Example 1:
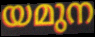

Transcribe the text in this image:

യമുന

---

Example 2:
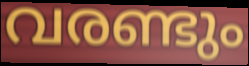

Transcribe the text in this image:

വരണ്ടും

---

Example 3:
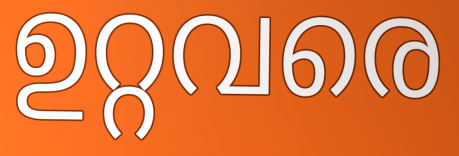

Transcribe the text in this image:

ഉറ്റവരെ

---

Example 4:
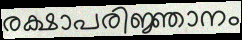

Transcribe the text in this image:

രക്ഷാപരിജ്ഞാനം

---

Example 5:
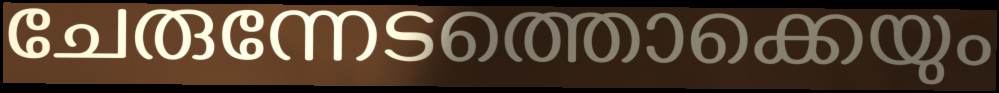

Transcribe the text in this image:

ചേരുന്നേടത്തൊക്കെയും